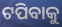
ଟପିବାକୁ